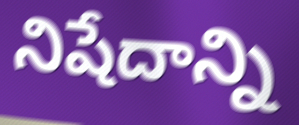
నిషేదాన్ని